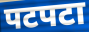
पटपटा